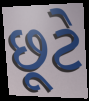
છૂટે